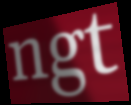
ngt